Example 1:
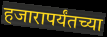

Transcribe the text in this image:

हजारापर्यंतच्या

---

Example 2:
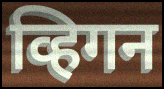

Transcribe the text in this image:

व्हिगन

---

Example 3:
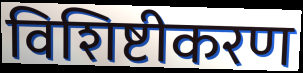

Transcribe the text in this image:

विशिष्टीकरण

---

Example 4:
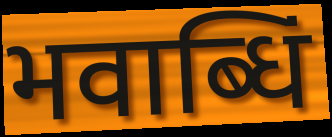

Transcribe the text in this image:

भवाब्धिं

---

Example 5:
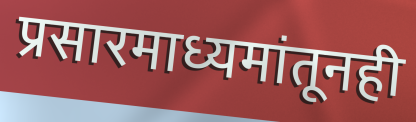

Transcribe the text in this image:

प्रसारमाध्यमांतूनही